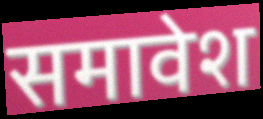
समावेश